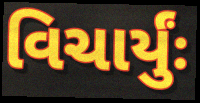
વિચાર્યુંઃ